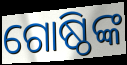
ଗୋଷ୍ଠିଙ୍କ